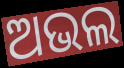
ଅଭଲ